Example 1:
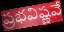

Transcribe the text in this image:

ప్రభవిష్ణవే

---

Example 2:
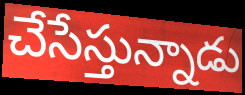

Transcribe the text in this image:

చేసేస్తున్నాడు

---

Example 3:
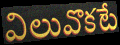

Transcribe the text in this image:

విలువొకటే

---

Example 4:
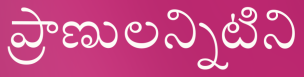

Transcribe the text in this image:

ప్రాణులన్నిటిని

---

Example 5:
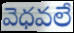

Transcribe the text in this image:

వెధవలే